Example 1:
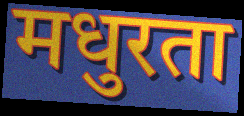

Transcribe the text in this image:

मधुरता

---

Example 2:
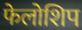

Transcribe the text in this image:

फेलोशिप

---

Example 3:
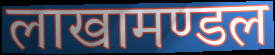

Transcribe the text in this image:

लाखामण्डल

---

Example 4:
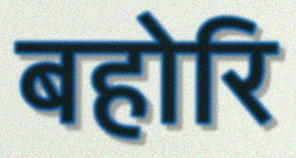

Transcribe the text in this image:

बहोरि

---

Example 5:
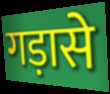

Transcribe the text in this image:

गड़ासे